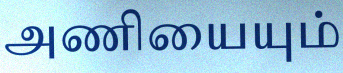
அணியையும்